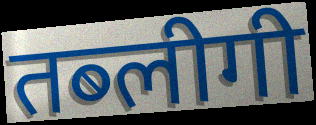
तब्‍लीगी